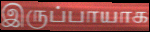
இருப்பாயாக